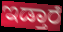
ಇಡ್ತಾರೆ